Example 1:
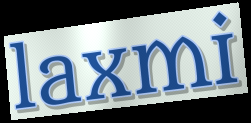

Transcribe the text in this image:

laxmi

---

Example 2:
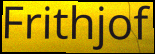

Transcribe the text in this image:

Frithjof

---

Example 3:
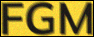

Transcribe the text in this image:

FGM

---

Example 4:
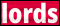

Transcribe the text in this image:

lords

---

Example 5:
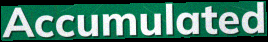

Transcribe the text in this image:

Accumulated